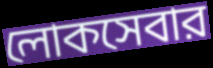
লোকসেবার